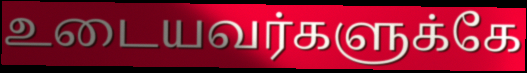
உடையவர்களுக்கே